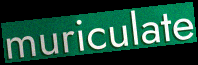
muriculate